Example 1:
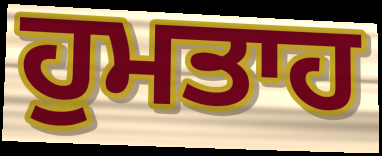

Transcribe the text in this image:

ਹੁਮਤਾਹ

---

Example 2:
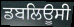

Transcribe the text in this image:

ਡਬਲਿਊਸੀ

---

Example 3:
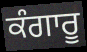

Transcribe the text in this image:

ਕੰਗਾਰੂ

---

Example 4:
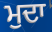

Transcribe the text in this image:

ਮੁਦਾ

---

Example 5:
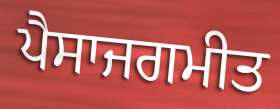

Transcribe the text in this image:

ਪੈਸਾਜਗਮੀਤ